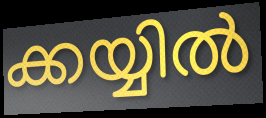
ക്കയ്യിൽ